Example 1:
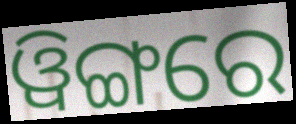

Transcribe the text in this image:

ୱିଙ୍ଗରେ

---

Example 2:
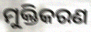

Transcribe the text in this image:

ମୁକ୍ତିକରଣ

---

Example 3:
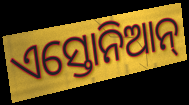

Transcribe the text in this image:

ଏସ୍ତୋନିଆନ୍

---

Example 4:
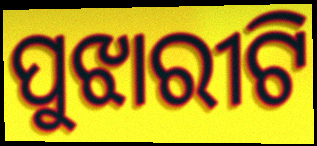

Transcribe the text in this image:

ପୁଝାରୀଟି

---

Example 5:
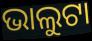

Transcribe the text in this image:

ଭାଲୁଟା